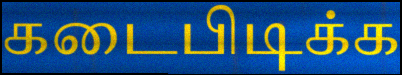
கடைபிடிக்க